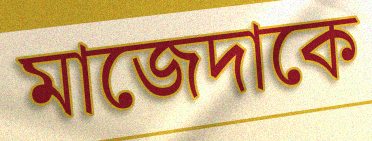
মাজেদাকে